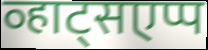
व्हाट्सएप्प